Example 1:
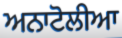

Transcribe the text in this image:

ਅਨਾਟੋਲੀਆ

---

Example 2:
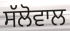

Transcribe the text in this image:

ਸੱਲੋਵਾਲ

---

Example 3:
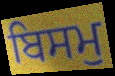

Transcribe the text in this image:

ਬਿਸਮੁ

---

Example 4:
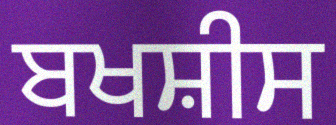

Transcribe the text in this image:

ਬਖਸ਼ੀਸ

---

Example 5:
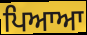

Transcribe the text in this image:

ਪਿਆਆ